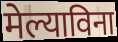
मेल्याविना